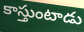
కాస్తుంటాడు